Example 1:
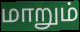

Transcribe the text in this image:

மாறும்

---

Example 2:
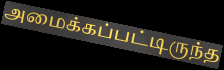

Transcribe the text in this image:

அமைக்கப்பட்டிருந்த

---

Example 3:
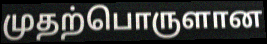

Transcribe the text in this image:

முதற்பொருளான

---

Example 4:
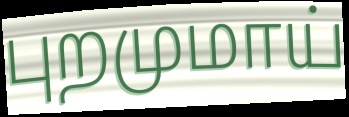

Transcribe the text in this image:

புறமுமாய்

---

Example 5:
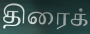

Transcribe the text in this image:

திரைக்